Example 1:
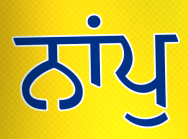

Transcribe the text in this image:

ਨਾਂਪੁ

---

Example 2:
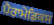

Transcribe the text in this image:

ਪੈਰਾਮੇਡਿਕਸ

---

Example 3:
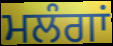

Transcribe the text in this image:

ਮਲੰਗਾਂ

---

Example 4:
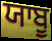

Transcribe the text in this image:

ਯਾਬੂ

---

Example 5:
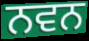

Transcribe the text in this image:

ਨਵਨ